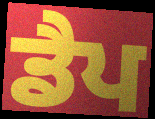
ਡੈਪ